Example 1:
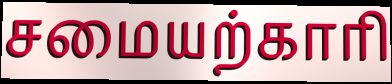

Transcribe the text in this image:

சமையற்காரி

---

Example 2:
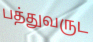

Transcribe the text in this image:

பத்துவருட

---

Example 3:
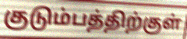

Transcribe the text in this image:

குடும்பத்திற்குள்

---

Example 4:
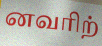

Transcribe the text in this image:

னவரிற்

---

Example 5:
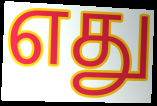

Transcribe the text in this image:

எது